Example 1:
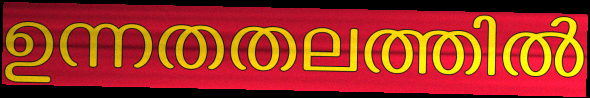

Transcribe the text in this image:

ഉന്നതതലത്തിൽ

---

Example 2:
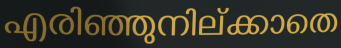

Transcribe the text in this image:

എരിഞ്ഞുനില്ക്കാതെ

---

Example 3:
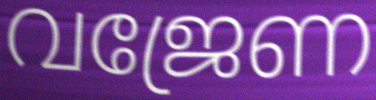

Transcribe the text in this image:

വജ്രേണ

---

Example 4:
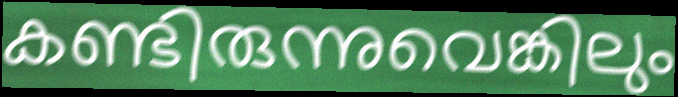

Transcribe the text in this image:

കണ്ടിരുന്നുവെങ്കിലും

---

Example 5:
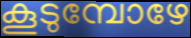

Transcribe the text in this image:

കൂടുമ്പോഴേ